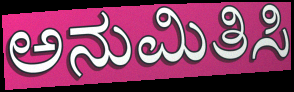
ಅನುಮಿತಿಸಿ